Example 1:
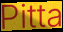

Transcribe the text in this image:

Pitta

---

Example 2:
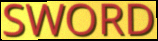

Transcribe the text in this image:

SWORD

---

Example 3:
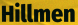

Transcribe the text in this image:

Hillmen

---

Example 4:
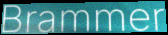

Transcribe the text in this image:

Brammer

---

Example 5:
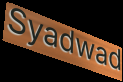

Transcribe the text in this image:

Syadwad